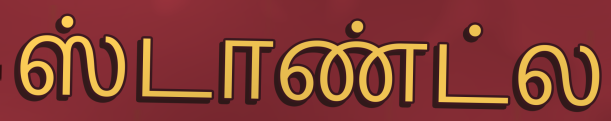
ஸ்டாண்ட்ல